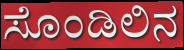
ಸೊಂಡಿಲಿನ